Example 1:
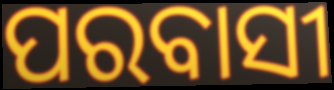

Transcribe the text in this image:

ପରବାସୀ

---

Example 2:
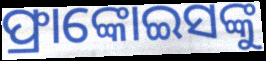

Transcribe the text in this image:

ଫ୍ରାଙ୍କୋଇସଙ୍କୁ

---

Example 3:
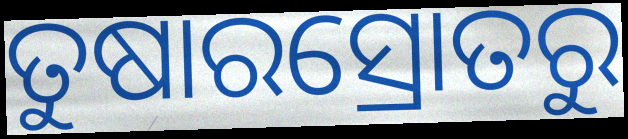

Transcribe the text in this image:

ତୁଷାରସ୍ରୋତରୁ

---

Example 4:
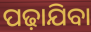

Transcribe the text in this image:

ପଢ଼ାଯିବା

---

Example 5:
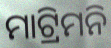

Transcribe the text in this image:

ମାଟ୍ରିମନି